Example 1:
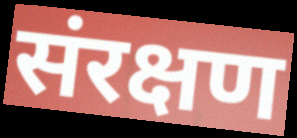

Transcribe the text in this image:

संरक्षण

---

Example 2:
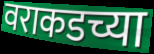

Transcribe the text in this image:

वराकडच्या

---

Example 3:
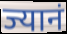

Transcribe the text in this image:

ज्यानं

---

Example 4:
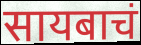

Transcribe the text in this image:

सायबाचं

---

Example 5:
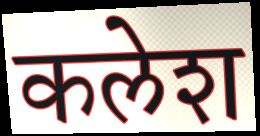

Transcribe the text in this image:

कलेश